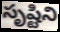
సృష్టిని